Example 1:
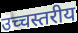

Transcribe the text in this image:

उच्चस्तरीय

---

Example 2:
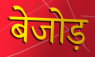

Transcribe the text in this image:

बेजोड़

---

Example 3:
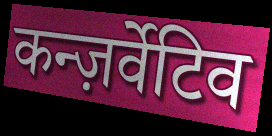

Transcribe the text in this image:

कन्ज़र्वेटिव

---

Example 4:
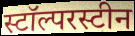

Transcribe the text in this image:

स्टॉल्परस्टीन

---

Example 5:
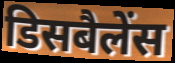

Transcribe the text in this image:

डिसबैलेंस